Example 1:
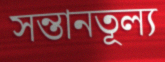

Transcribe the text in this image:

সন্তানতূল্য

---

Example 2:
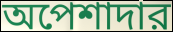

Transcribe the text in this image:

অপেশাদার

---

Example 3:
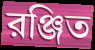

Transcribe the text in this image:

রঞ্জিত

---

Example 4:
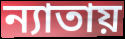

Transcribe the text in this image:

ন্যাতায়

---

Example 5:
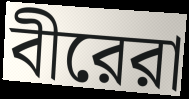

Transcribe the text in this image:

বীরেরা